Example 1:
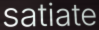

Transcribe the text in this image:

satiate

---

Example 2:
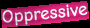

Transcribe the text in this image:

Oppressive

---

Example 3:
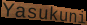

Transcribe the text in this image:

Yasukuni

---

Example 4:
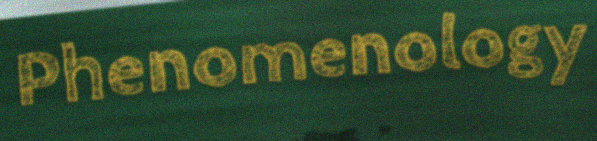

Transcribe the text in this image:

Phenomenology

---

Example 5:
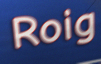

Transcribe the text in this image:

Roig